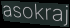
asokraj